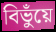
বিভুঁয়ে